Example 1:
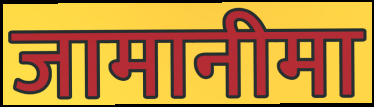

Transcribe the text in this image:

जामानीमा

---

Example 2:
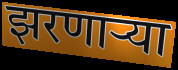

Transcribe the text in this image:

झरणाऱ्या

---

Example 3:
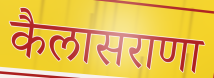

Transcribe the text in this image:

कैलासराणा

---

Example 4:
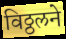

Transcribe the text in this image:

विठ्ठलने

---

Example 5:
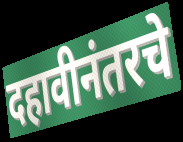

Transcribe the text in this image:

दहावीनंतरचे